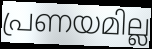
പ്രണയമില്ല